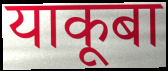
याकूबा